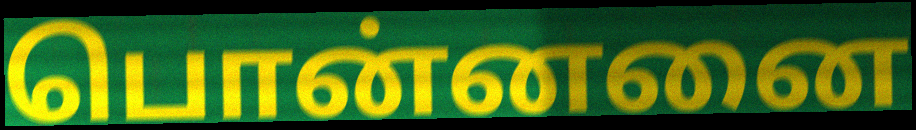
பொன்னனை